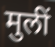
मुलीं